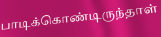
பாடிக்கொண்டிருந்தாள்